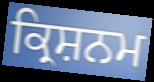
ਕ੍ਰਿਸ਼ਨਮ